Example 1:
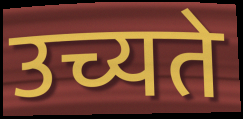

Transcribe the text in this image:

उच्यते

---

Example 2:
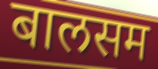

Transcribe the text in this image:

बालसम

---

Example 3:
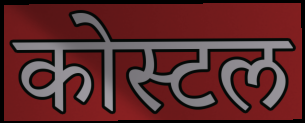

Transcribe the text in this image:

कोस्टल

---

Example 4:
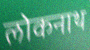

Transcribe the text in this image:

लोकनाथ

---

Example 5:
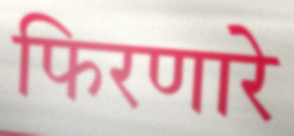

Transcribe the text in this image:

फिरणारे